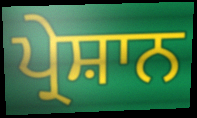
ਪ੍ਰੇਸ਼ਾਨ